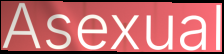
Asexual